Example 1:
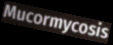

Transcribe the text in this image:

Mucormycosis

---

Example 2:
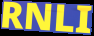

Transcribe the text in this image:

RNLI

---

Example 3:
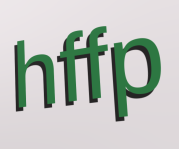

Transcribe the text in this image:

hffp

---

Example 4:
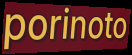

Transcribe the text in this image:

porinoto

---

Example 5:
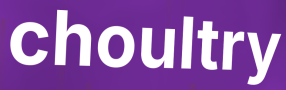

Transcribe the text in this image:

choultry